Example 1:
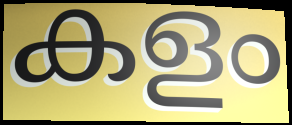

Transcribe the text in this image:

കളം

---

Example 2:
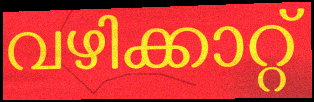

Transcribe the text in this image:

വഴിക്കാറ്റ്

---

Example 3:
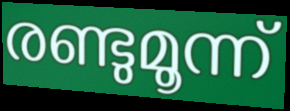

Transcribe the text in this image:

രണ്ടുമൂന്ന്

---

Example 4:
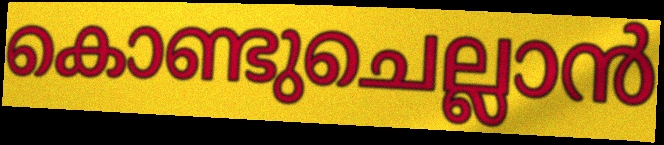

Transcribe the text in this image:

കൊണ്ടുചെല്ലാൻ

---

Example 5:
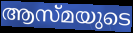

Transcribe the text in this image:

ആസ്മയുടെ